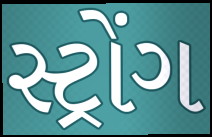
સ્ટ્રોંગ